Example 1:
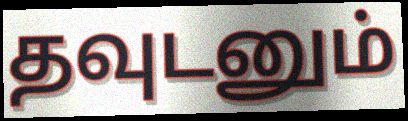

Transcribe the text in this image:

தவுடனும்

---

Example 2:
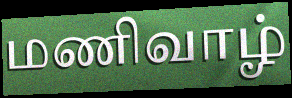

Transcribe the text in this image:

மணிவாழ்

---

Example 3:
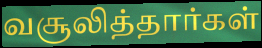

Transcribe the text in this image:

வசூலித்தார்கள்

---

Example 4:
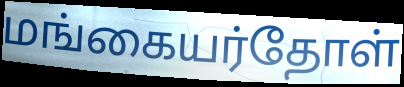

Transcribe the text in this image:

மங்கையர்தோள்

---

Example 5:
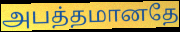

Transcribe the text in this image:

அபத்தமானதே